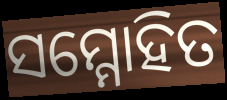
ସମ୍ମୋହିତ